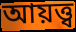
আয়ত্ত্ব